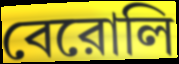
বেরোলি